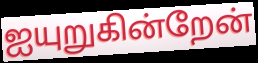
ஐயுறுகின்றேன்